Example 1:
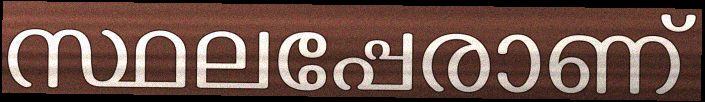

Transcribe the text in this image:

സ്ഥലപ്പേരാണ്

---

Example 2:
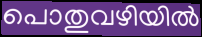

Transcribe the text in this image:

പൊതുവഴിയിൽ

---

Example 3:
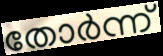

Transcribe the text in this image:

തോർന്ന്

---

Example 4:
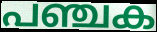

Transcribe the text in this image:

പഞ്ചക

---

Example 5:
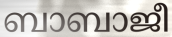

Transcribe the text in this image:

ബാബാജീ